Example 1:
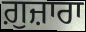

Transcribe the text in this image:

ਗ਼ੁਜ਼ਾਰਾ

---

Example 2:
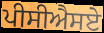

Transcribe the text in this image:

ਪੀਸੀਐਸਏ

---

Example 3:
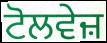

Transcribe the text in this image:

ਟੋਲਵੇਜ਼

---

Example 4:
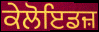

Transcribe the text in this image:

ਕੇਲੋਇਡਜ਼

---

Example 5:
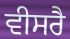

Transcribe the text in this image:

ਵੀਸਰੈ